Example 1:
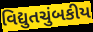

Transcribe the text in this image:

વિદ્યુતચુંબકીય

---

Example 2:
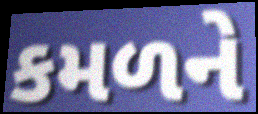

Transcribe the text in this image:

કમળને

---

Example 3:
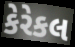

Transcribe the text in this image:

કેરેકલ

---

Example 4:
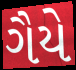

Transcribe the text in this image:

ગૈયે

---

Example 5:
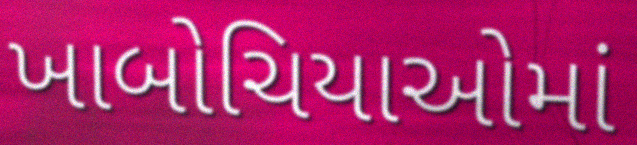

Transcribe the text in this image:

ખાબોચિયાઓમાં